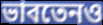
ভাবতেনও